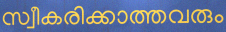
സ്വീകരിക്കാത്തവരും